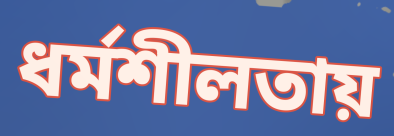
ধর্মশীলতায়